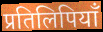
प्रतिलिपियाँ